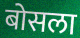
बोसला